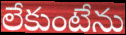
లేకుంటేను